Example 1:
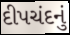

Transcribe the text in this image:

દીપચંદનું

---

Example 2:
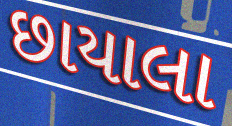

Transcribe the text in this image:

છાયાલા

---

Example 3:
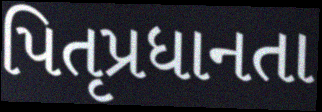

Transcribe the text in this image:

પિતૃપ્રધાનતા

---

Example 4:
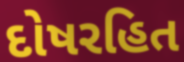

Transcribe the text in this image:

દોષરહિત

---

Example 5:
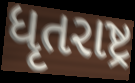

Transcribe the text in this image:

ધૃતરાષ્ટ્ર